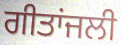
ਗੀਤਾਂਜਲੀ